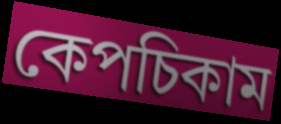
কেপচিকাম